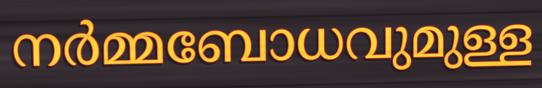
നർമ്മബോധവുമുള്ള